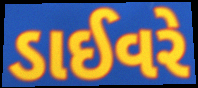
ડાઈવરે